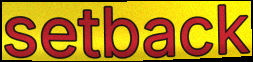
setback